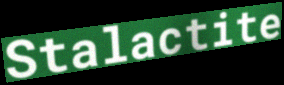
Stalactite